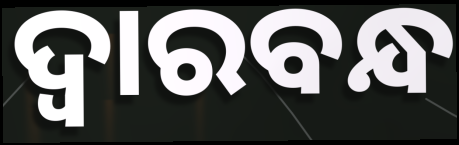
ଦ୍ବାରବନ୍ଧ